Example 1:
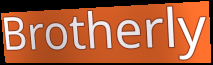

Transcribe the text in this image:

Brotherly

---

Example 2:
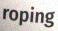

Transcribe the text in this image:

roping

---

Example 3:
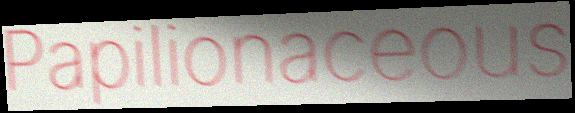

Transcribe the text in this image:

Papilionaceous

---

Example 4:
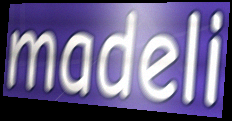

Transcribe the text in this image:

madeli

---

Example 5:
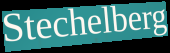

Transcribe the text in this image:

Stechelberg